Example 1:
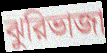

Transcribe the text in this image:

ঝুরিভাজা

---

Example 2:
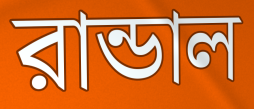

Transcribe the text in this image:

রান্ডাল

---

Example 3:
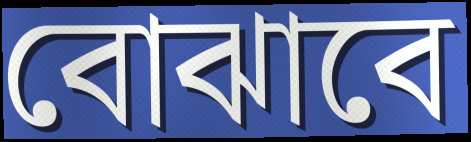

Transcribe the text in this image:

বোঝাবে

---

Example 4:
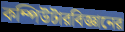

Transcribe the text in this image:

কম্পিউটারবিজ্ঞানের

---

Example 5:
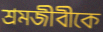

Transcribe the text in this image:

শ্রমজীবীকে